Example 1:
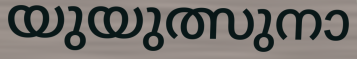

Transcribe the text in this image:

യുയുത്സുനാ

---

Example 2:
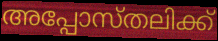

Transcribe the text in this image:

അപ്പോസ്തലിക്ക്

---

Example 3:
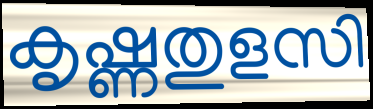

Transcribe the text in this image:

കൃഷ്ണതുളസി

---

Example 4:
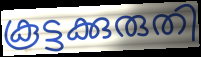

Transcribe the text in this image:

കൂട്ടക്കുരുതി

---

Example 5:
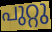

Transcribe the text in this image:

പുറ്റു